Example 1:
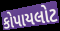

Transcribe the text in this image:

કોપાયલોટ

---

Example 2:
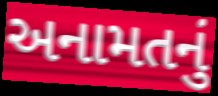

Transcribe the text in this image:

અનામતનું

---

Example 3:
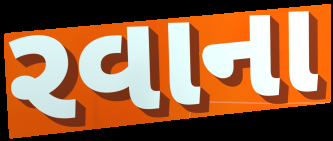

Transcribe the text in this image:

રવાના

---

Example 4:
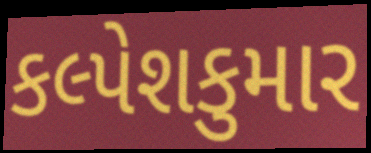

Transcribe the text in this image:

કલ્પેશકુમાર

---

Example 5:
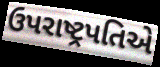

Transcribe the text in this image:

ઉપરાષ્ટ્રપતિએ